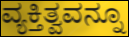
ವ್ಯಕ್ತಿತ್ವವನ್ನೂ